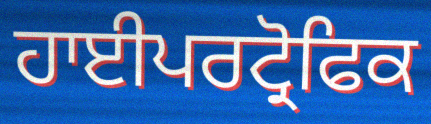
ਹਾਈਪਰਟ੍ਰੋਫਿਕ